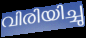
വിരിയിച്ചു